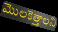
మొలకెత్తాలని